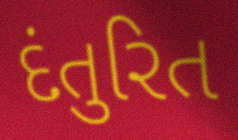
દંતુરિત